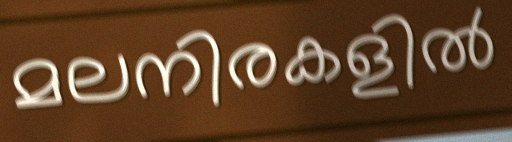
മലനിരകളിൽ